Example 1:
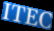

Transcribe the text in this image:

ITEC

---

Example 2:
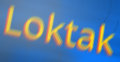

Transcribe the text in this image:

Loktak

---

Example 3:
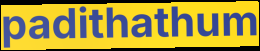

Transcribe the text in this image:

padithathum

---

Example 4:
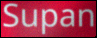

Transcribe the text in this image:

Supan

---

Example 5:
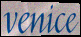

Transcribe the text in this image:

venice